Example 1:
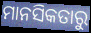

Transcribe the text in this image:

ମାନସିକତାରୁ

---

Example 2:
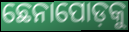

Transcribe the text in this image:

ଛେନାପୋଡ଼କୁ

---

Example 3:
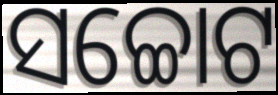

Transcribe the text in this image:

ସଚ୍ଚୋଟ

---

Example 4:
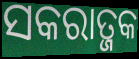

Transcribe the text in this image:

ସକରାତ୍ଜକ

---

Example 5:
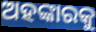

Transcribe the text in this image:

ଅହଙ୍କାରକୁ